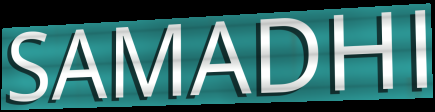
SAMADHI